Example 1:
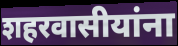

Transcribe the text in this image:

शहरवासीयांना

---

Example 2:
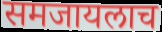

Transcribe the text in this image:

समजायलाच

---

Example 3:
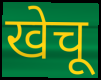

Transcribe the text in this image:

खेचू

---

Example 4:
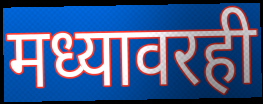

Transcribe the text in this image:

मध्यावरही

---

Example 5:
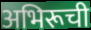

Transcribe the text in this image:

अभिरूची